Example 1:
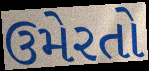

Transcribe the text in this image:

ઉમેરતો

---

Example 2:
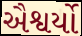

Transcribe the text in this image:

ઐશ્વર્યો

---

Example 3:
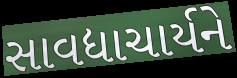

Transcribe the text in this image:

સાવદ્યાચાર્યને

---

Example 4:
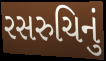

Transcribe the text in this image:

રસરુચિનું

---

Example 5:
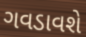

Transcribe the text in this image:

ગવડાવશે